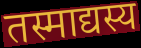
तस्माद्यस्य